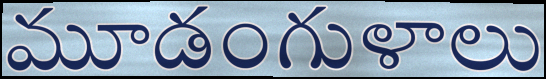
మూడంగుళాలు